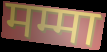
मम्मा